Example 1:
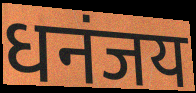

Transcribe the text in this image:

धनंजय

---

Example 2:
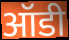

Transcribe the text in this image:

ऑडी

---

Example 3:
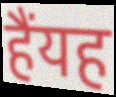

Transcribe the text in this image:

हैंयह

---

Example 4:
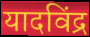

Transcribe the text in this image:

यादविंद्र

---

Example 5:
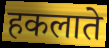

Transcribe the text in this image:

हकलाते